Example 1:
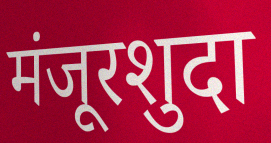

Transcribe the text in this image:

मंजूरशुदा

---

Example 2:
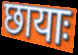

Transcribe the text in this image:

छायाः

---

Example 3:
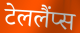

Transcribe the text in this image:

टेललैंप्स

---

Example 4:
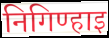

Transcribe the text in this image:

निगिण्हाइ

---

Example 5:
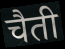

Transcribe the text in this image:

चैती